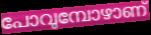
പോവുമ്പോഴാണ്